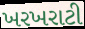
ખરખરાટી